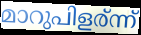
മാറുപിളര്ന്ന്